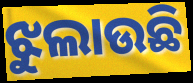
ଝୁଲାଉଛି